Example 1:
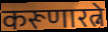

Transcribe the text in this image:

करूणारत्ने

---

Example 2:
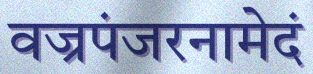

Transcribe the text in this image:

वज्रपंजरनामेदं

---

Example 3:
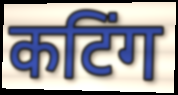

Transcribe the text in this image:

कटिंग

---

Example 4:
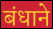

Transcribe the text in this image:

बंधाने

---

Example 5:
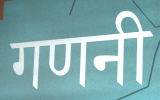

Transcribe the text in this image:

गणनी